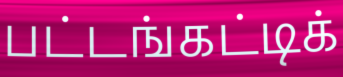
பட்டங்கட்டிக்